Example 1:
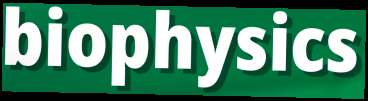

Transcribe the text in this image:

biophysics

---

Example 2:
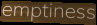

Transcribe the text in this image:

emptiness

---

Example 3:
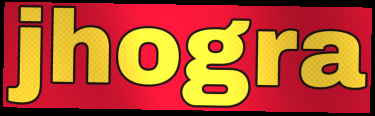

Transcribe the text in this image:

jhogra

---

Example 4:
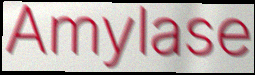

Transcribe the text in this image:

Amylase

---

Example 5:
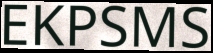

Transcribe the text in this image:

EKPSMS